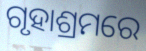
ଗୃହାଶ୍ରମରେ